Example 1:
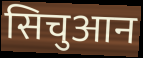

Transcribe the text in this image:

सिचुआन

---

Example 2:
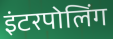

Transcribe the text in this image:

इंटरपोलिंग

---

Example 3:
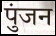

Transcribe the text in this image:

पुंजन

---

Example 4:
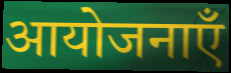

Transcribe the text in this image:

आयोजनाएँ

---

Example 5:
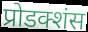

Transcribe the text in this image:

प्रोडक्शंस